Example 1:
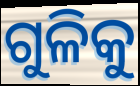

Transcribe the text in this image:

ଗୁଳିକୁ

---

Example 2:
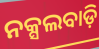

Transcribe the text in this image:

ନକ୍ସଲବାଡ଼ି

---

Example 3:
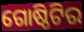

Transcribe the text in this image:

ଗୋଷ୍ଠିଟିର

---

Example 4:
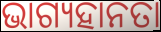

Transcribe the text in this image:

ଭାଗ୍ୟହାନତା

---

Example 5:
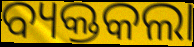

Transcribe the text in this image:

ବ୍ୟକ୍ତକଲା